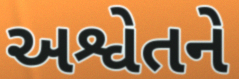
અશ્વેતને